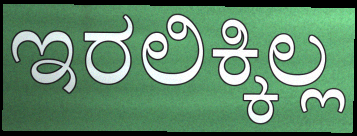
ಇರಲಿಕ್ಕಿಲ್ಲ